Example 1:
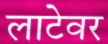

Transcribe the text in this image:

लाटेवर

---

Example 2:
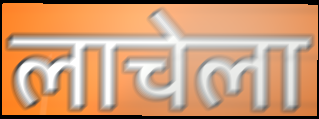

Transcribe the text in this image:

लाचेला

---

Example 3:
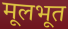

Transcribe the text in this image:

मूलभूत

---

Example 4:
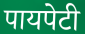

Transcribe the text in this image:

पायपेटी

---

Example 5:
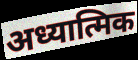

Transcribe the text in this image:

अध्यात्मिक